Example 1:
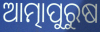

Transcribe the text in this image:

ଆତ୍ମାପୁରୁଷ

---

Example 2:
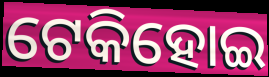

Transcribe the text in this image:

ଟେକିହୋଇ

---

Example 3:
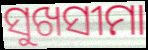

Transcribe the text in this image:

ସୁଖସୀମା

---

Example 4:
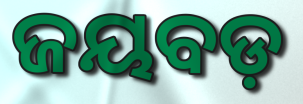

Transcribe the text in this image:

ଜୟବଡ଼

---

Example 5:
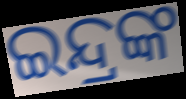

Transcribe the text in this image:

ଇନ୍ଦ୍ରଙ୍କ